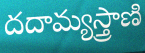
దదామ్యస్త్రాణి